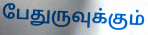
பேதுருவுக்கும்